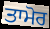
ਤਾਮੋਰ